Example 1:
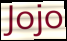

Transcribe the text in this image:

Jojo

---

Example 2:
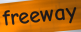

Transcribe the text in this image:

freeway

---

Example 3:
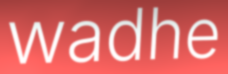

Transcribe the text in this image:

wadhe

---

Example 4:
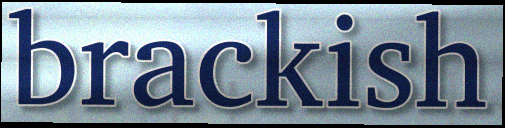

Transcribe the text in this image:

brackish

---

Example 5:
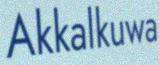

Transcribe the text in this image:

Akkalkuwa